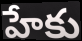
హేకు